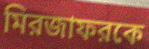
মিরজাফরকে